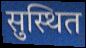
सुस्थित